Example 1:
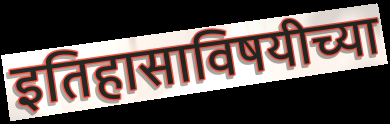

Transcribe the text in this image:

इतिहासाविषयीच्या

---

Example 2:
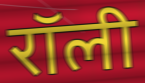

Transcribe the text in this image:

रॉली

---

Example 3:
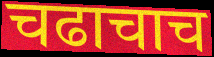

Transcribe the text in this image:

चढाचाच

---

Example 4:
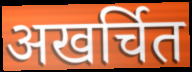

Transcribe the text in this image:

अखर्चित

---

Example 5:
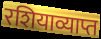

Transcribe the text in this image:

रशियाव्याप्त